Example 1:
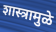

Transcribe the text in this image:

शास्त्रामुळे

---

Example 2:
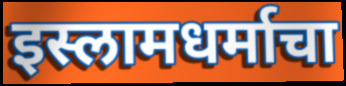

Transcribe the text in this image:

इस्लामधर्माचा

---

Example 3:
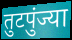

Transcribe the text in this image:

तुटपुंज्या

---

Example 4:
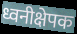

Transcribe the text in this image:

ध्वनीक्षेपक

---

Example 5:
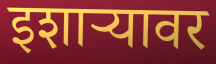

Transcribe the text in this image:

इशाऱ्यावर